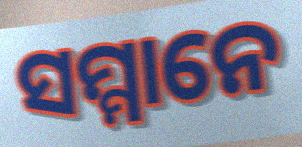
ସମ୍ମାନେ